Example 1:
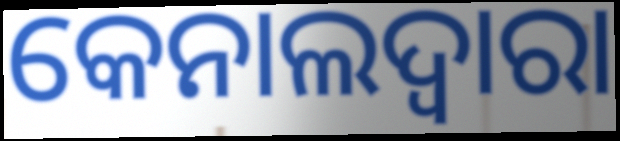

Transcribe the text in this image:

କେନାଲଦ୍ଵାରା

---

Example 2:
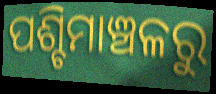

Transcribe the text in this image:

ପଶ୍ଚିମାଞ୍ଚଳରୁ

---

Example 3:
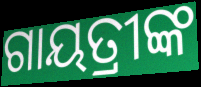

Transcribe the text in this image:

ଗାୟତ୍ରୀଙ୍କ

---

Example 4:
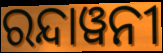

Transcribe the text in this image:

ରନ୍ଦାୱନୀ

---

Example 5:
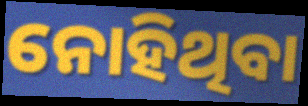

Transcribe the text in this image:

ନୋହିଥିବା